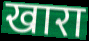
खारा